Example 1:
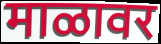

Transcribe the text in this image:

माळावर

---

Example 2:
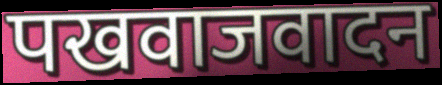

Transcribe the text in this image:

पखवाजवादन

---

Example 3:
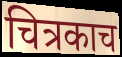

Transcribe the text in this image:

चित्रकाच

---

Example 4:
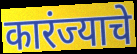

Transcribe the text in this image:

कारंज्याचे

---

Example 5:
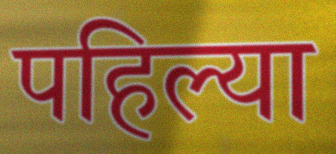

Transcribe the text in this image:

पहिल्या